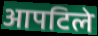
आपटिले